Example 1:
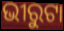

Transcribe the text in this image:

ଭୀରୁଟା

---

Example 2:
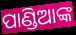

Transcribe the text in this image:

ପାଣ୍ଡିଆଙ୍କ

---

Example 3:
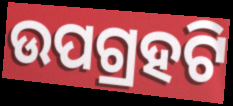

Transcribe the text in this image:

ଉପଗ୍ରହଟି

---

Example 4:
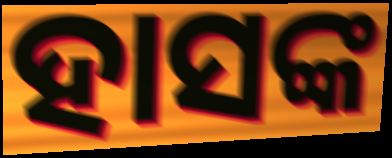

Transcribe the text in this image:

ହାସଙ୍କ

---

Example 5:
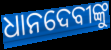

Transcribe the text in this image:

ଧାନଦେବୀଙ୍କୁ